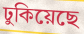
ঢুকিয়েছে